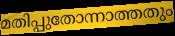
മതിപ്പുതോന്നാത്തതും